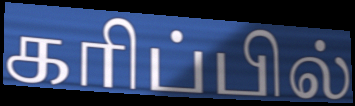
கரிப்பில்